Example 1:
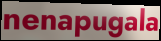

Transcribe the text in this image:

nenapugala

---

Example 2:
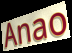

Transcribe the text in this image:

Anao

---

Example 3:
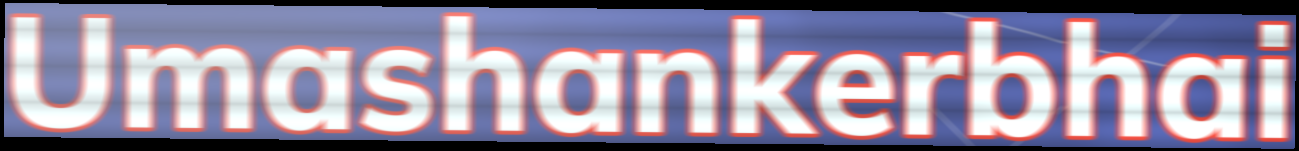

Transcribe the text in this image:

Umashankerbhai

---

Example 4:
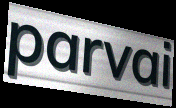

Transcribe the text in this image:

parvai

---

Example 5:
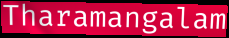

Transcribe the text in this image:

Tharamangalam